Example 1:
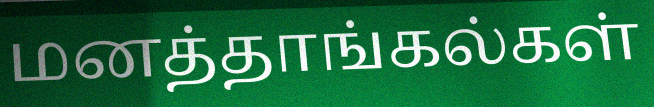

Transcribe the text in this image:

மனத்தாங்கல்கள்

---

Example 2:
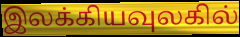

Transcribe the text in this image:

இலக்கியவுலகில்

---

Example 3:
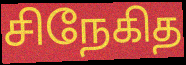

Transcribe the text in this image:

சிநேகித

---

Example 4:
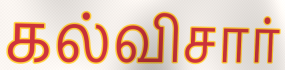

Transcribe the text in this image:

கல்விசார்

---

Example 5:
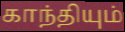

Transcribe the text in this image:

காந்தியும்